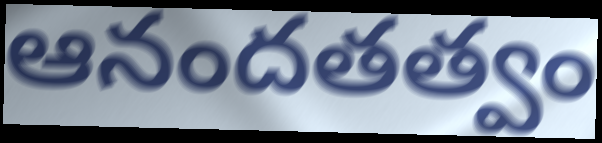
ఆనందతత్వం